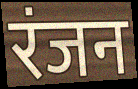
रंजन